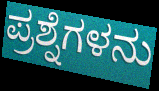
ಪ್ರಶ್ನೆಗಳನು